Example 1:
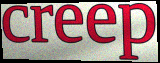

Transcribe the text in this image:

creep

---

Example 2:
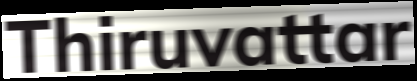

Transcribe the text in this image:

Thiruvattar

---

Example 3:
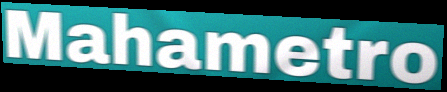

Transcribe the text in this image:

Mahametro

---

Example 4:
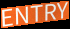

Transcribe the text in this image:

ENTRY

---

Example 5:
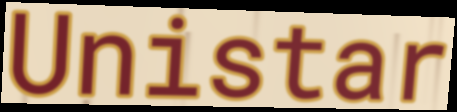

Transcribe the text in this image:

Unistar